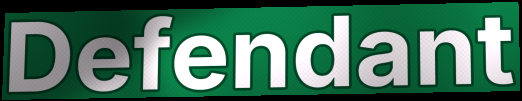
Defendant